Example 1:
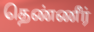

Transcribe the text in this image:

தெண்ணீர்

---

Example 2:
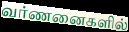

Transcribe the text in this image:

வர்ணனைகளில்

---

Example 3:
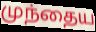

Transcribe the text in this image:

முந்தைய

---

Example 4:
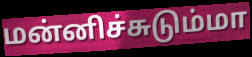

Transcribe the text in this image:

மன்னிச்சுடும்மா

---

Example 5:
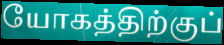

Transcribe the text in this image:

யோகத்திற்குப்